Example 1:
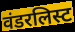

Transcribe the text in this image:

वंडरलिस्ट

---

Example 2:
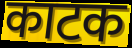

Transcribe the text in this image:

काटक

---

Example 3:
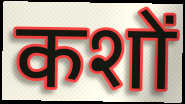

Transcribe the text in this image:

कशों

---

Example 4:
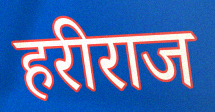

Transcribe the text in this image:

हरीराज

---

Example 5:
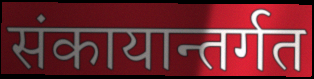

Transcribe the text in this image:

संकायान्तर्गत